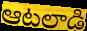
ఆటలాడి